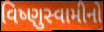
વિષ્ણુસ્વામીનો